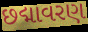
છદ્માવરણ